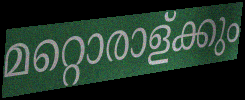
മറ്റൊരാള്ക്കും